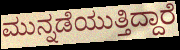
ಮುನ್ನಡೆಯುತ್ತಿದ್ದಾರೆ